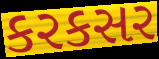
કરકસર